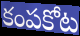
కంపకోట